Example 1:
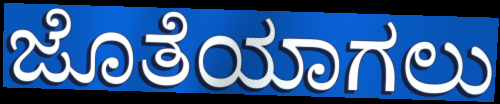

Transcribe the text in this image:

ಜೊತೆಯಾಗಲು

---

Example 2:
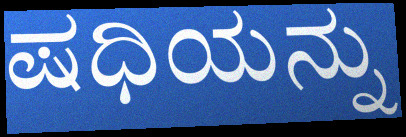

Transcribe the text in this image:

ಷಧಿಯನ್ನು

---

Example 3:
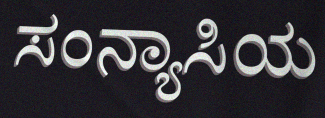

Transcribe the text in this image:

ಸಂನ್ಯಾಸಿಯ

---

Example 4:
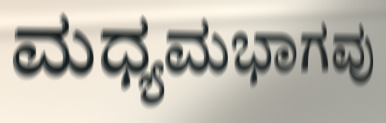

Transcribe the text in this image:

ಮಧ್ಯಮಭಾಗವು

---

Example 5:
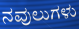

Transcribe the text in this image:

ನವುಲುಗಳು